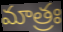
మాత్రః